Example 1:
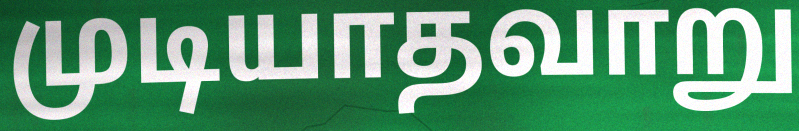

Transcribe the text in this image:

முடியாதவாறு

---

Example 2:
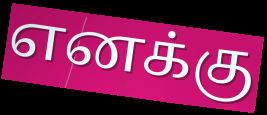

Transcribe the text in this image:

எனக்கு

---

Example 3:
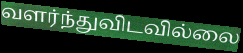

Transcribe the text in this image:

வளர்ந்துவிடவில்லை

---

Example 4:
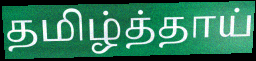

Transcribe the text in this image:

தமிழ்த்தாய்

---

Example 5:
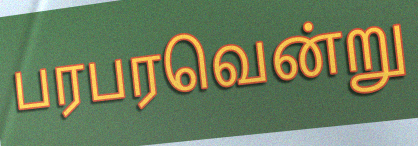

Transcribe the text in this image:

பரபரவென்று